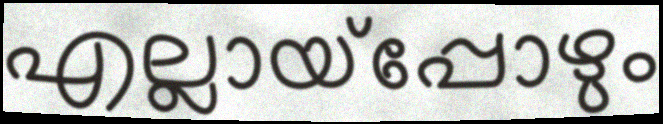
എല്ലായ്പ്പോഴും